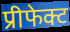
प्रीफेक्ट